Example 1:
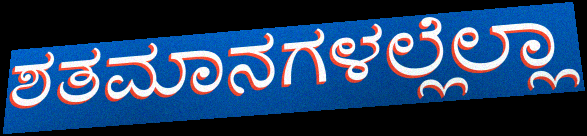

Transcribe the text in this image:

ಶತಮಾನಗಳಲ್ಲೆಲ್ಲಾ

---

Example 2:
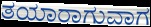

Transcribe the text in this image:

ತಯಾರಾಗುವಾಗ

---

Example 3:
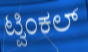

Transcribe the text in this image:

ಟ್ವಿಂಕಲ್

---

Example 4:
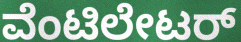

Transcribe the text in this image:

ವೆಂಟಿಲೇಟರ್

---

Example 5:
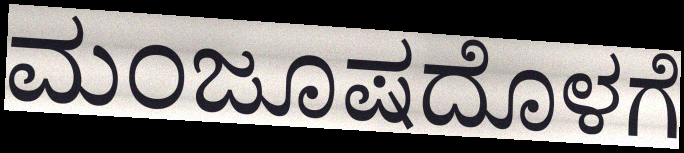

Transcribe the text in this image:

ಮಂಜೂಷದೊಳಗೆ